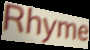
Rhyme